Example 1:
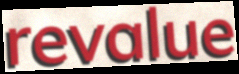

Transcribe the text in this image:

revalue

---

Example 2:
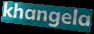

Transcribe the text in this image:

khangela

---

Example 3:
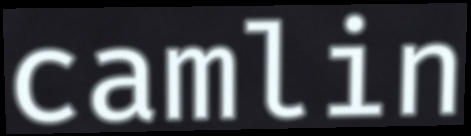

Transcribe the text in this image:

camlin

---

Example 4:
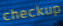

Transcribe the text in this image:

checkup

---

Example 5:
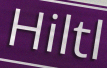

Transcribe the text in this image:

Hiltl